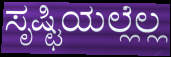
ಸೃಷ್ಟಿಯಲ್ಲೆಲ್ಲ